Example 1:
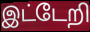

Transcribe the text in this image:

இட்டேறி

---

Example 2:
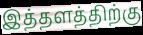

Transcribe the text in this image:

இத்தளத்திற்கு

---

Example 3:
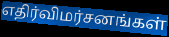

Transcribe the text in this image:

எதிர்விமர்சனங்கள்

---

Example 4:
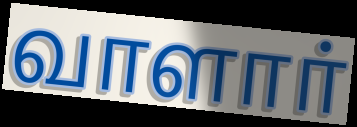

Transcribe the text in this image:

வாளார்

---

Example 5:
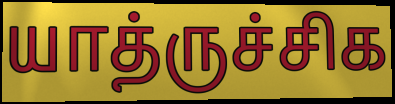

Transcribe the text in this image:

யாத்ருச்சிக